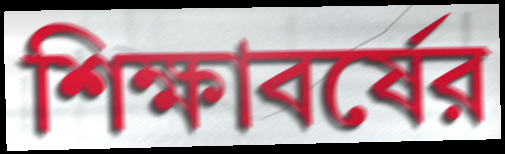
শিক্ষাবর্ষের